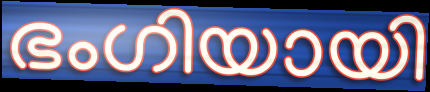
ഭംഗിയായി